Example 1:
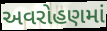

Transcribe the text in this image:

અવરોહણમાં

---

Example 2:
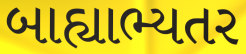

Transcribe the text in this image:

બાહ્યાભ્યતર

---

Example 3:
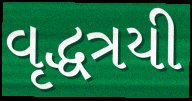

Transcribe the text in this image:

વૃદ્ધત્રયી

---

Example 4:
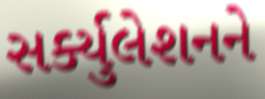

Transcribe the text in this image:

સર્ક્યુલેશનને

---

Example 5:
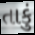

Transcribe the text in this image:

તાકું